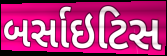
બર્સાઇટિસ